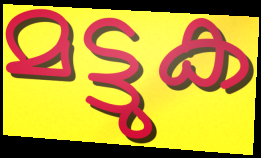
മട്ടുക